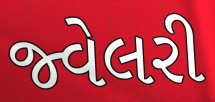
જ્વેલરી